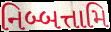
નિબ્બત્તામિ